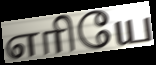
எரியே